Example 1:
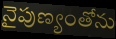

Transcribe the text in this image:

నైపుణ్యంతోను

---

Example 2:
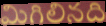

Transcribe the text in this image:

మిగిలినది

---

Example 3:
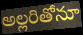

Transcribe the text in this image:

అల్లరితోనూ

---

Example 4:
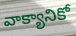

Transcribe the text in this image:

వాక్యానికో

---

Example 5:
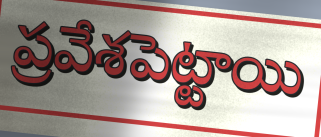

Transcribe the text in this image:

ప్రవేశపెట్టాయి